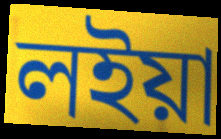
লইয়া